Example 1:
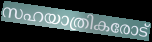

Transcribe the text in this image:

സഹയാത്രികരോട്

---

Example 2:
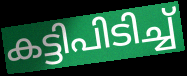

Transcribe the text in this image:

കട്ടിപിടിച്ച്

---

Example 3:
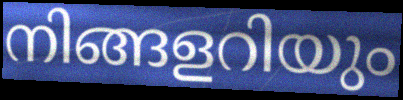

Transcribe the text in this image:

നിങ്ങളറിയും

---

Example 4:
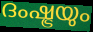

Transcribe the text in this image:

ദംഷ്ട്രയും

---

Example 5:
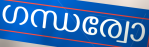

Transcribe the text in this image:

ഗന്ധര്വോ